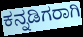
ಕನ್ನಡಿಗರಾಗಿ